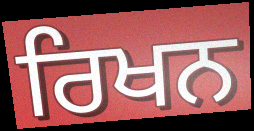
ਰਿਖਨ